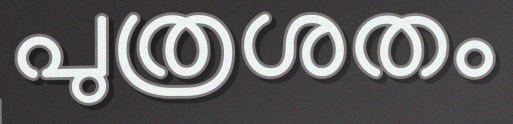
പുത്രശതം